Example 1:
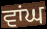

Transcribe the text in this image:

ਵਾਂਘ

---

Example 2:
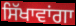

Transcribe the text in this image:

ਸਿੱਖਾਵਾਂਗਾ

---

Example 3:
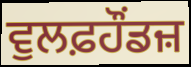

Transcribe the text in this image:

ਵੁਲਫ਼ਹੌਂਡਜ਼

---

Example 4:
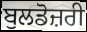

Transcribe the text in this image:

ਬੁਲਡੋਜ਼ਰੀ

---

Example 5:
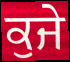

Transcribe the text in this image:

ਕੁਜੇ